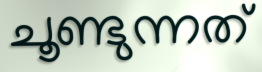
ചൂണ്ടുന്നത്